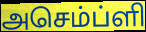
அசெம்ப்ளி